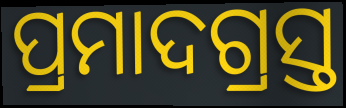
ପ୍ରମାଦଗ୍ରସ୍ତ